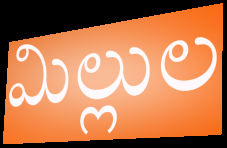
మిల్లుల